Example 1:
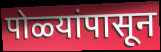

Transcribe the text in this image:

पोळ्यांपासून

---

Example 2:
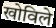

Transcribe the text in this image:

खोविले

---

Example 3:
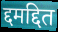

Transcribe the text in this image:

द्दमद्दित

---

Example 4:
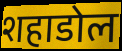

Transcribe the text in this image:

शहाडोल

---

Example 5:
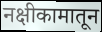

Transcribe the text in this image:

नक्षीकामातून